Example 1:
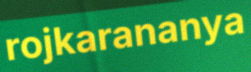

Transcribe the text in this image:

rojkarananya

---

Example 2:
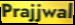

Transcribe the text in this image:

Prajjwal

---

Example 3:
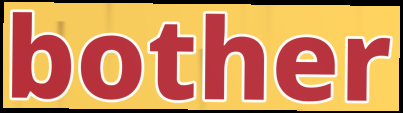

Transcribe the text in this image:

bother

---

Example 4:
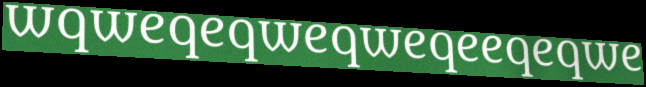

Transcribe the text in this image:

wqweqeqweqweqeeqeqwe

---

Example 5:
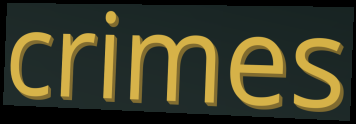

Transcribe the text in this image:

crimes